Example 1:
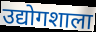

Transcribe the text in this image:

उद्योगशाला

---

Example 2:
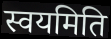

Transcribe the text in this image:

स्वयमिति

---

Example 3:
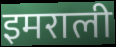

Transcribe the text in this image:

इमराली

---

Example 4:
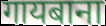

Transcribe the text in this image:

गायबाना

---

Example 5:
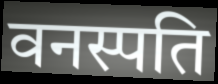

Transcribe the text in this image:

वनस्‍पति